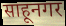
साहूनगर